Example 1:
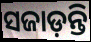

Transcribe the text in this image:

ସଜାଡ଼ନ୍ତି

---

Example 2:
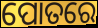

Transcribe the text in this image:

ପୋତରେ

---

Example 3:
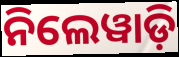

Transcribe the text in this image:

ନିଲେୱାଡ଼ି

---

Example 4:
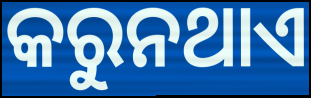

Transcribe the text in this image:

କରୁନଥାଏ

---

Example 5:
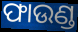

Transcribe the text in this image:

ଫାଉଣ୍ଡ